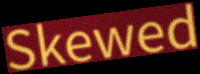
Skewed